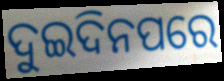
ଦୁଇଦିନପରେ